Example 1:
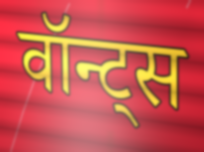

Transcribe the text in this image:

वॉन्ट्स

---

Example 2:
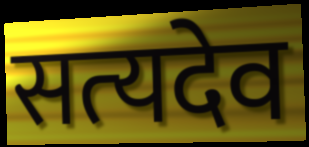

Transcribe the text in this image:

सत्‍यदेव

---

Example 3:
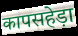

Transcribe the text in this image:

कापसहेड़ा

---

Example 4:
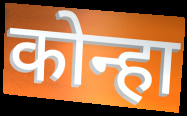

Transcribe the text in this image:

कोन्हा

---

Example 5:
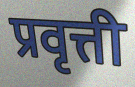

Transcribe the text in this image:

प्रवृत्ती